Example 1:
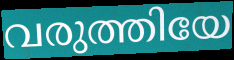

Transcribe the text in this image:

വരുത്തിയേ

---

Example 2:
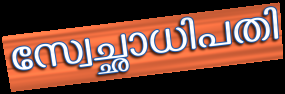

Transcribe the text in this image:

സ്വേച്ഛാധിപതി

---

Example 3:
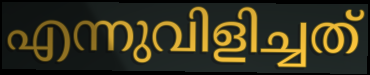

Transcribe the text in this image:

എന്നുവിളിച്ചത്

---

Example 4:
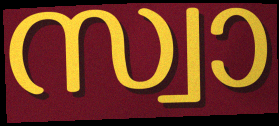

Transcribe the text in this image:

സ്വാ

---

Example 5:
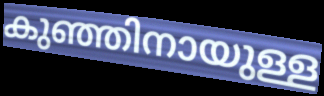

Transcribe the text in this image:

കുഞ്ഞിനായുള്ള